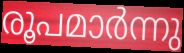
രൂപമാർന്നു